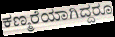
ಕಣ್ಮರೆಯಾಗಿದ್ದರೂ